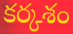
కర్కశం